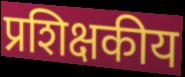
प्रशिक्षकीय